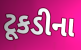
ટૂકડીના